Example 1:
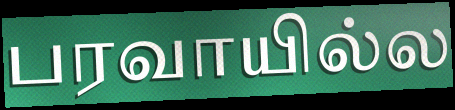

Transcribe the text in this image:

பரவாயில்ல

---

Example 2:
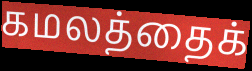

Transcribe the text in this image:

கமலத்தைக்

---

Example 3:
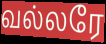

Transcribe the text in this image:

வல்லரே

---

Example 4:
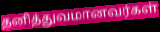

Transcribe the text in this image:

தனித்துவமானவர்கள்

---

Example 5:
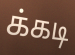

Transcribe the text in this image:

க்கடி